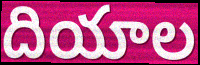
దియాల